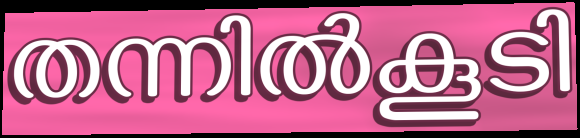
തന്നിൽകൂടി